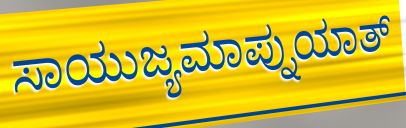
ಸಾಯುಜ್ಯಮಾಪ್ನುಯಾತ್